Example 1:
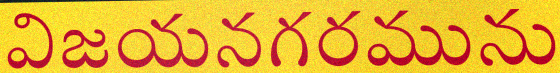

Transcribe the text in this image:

విజయనగరమును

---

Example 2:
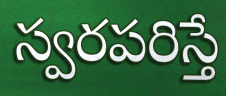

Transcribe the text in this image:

స్వరపరిస్తే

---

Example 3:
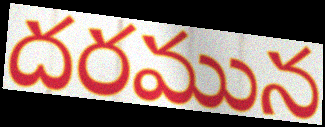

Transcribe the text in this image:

దరమున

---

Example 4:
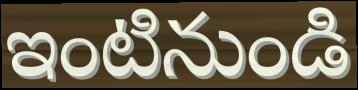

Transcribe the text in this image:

ఇంటినుండి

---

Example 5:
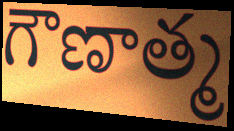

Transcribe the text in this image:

గౌణాత్మ